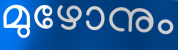
മുഴോനും